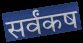
सर्वंकष